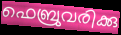
ഫെബ്രുവരിക്കു